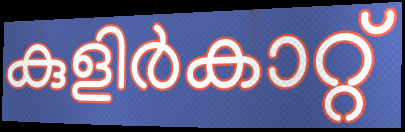
കുളിർകാറ്റ്